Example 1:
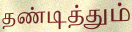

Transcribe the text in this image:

தண்டித்தும்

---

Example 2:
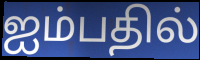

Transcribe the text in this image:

ஐம்பதில்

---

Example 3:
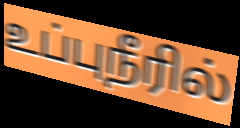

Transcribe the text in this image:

உப்புநீரில்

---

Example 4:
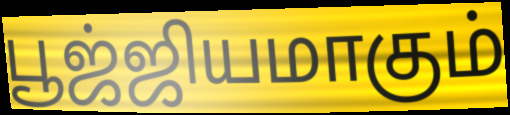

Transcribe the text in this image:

பூஜ்ஜியமாகும்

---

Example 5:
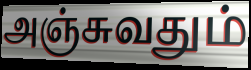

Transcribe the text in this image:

அஞ்சுவதும்